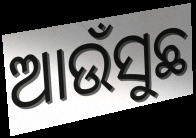
ଆଉଁସୁଛ